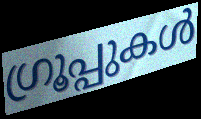
ഗ്രൂപ്പുകൾ